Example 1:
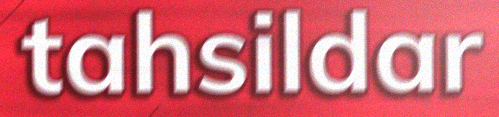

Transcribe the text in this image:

tahsildar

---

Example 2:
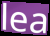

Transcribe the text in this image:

lea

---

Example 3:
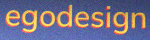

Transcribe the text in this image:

egodesign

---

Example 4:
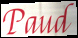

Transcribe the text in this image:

Paud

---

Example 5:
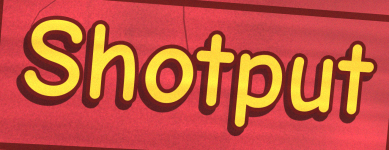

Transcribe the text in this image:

Shotput